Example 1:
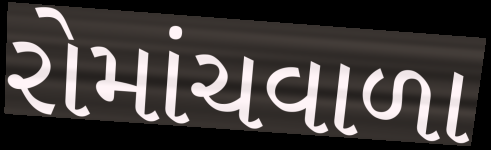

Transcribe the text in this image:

રોમાંચવાળા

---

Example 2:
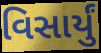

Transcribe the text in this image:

વિસાર્યું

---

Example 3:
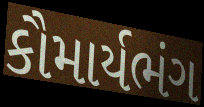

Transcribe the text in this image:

કૌમાર્યભંગ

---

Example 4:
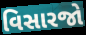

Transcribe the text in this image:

વિસારજો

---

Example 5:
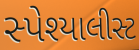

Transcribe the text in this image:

સ્પેશ્યાલીસ્ટ